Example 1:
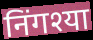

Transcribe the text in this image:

निंगश्या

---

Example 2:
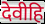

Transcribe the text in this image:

देवीहि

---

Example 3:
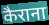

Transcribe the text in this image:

कैराना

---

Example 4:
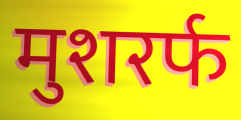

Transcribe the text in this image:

मुशरर्फ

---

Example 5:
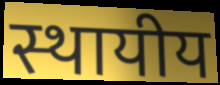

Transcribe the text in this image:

स्थायीय